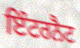
ਇੰਟਰਨੈਟ